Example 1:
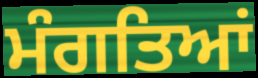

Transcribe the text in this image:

ਮੰਗਤਿਆਂ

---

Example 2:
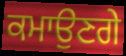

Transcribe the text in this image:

ਕਮਾਉਣਗੇ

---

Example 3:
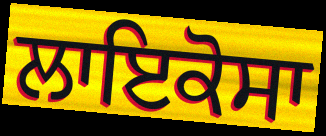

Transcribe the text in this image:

ਲਾਇਕੋਸਾ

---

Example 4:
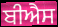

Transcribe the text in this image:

ਬੀਐਸ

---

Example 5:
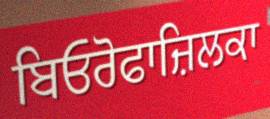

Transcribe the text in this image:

ਬਿਓਰੋਫਾਜ਼ਿਲਕਾ